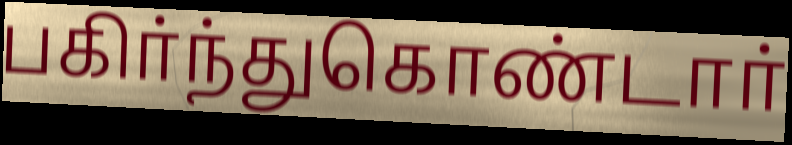
பகிர்ந்துகொண்டார்